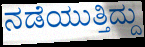
ನಡೆಯುತ್ತಿದ್ದು